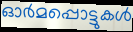
ഓർമപ്പൊട്ടുകൾ